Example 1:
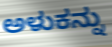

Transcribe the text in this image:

ಅಳುಕನ್ನು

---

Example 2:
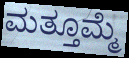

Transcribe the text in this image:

ಮತ್ತೂಮ್ಮೆ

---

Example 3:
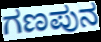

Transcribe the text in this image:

ಗಣಪುನ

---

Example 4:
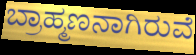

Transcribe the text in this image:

ಬ್ರಾಹ್ಮಣನಾಗಿರುವೆ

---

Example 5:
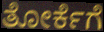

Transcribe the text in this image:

ತೋರ್ಕೆಗೆ